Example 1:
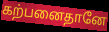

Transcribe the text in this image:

கற்பனைதானே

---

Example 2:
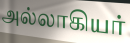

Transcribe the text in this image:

அல்லாகியர்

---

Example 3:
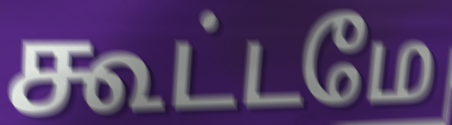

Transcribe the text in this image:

கூட்டமே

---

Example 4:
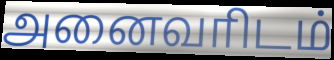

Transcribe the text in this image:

அனைவரிடம்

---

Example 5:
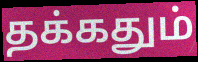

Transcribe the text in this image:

தக்கதும்